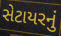
સેટાયરનું